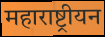
महाराष्ट्रीयन